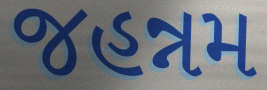
જહન્નમ